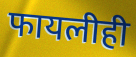
फायलीही